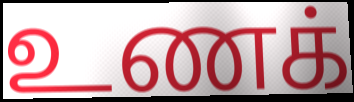
உணக்